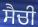
ਸੈਚੀ